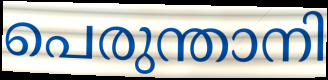
പെരുന്താനി